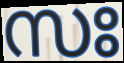
സഃ